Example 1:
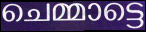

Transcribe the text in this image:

ചെമ്മാട്ടെ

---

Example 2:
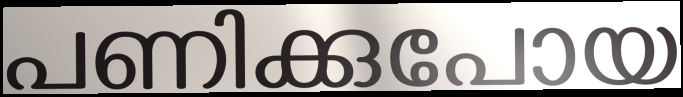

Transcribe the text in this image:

പണിക്കുപോയ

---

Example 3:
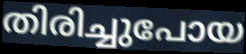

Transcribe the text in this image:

തിരിച്ചുപോയ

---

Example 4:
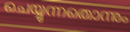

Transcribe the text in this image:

ചെയ്യുന്നതൊന്നും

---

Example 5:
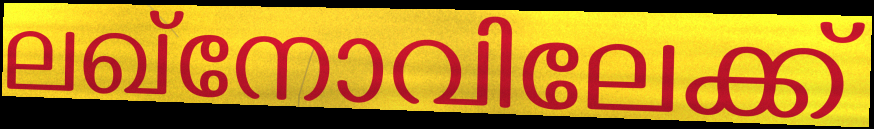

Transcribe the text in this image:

ലഖ്നോവിലേക്ക്